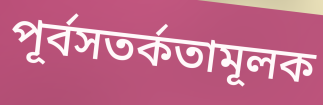
পূর্বসতর্কতামূলক